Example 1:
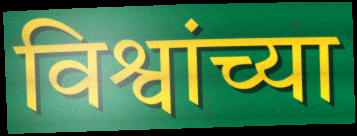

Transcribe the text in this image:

विश्वांच्या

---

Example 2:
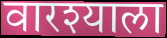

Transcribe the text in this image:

वारश्याला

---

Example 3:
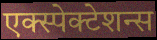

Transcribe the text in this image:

एक्स्पेक्टेशन्स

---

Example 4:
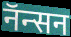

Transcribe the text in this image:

नॅन्सन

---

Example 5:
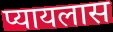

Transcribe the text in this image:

प्यायलास